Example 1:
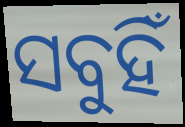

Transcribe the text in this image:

ସବୁହିଁ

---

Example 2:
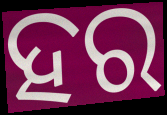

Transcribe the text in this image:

ହର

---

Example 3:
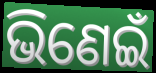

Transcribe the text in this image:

ଭିଣେଇଁ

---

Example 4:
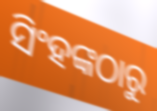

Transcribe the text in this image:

ସିଂହଙ୍କଠାରୁ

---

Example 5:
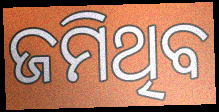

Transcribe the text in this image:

ଜମିଥିବ